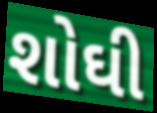
શોઘી